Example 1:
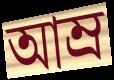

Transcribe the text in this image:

আম্র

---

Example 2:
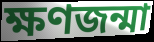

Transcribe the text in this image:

ক্ষণজন্মা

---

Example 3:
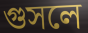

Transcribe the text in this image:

গুসলে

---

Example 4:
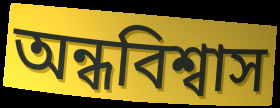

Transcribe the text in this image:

অন্ধবিশ্বাস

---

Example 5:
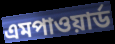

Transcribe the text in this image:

এমপাওয়ার্ড